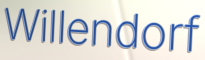
Willendorf